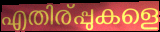
എതിര്പ്പുകളെ